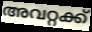
അവറ്റക്ക്